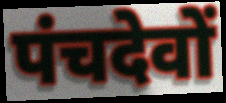
पंचदेवों